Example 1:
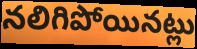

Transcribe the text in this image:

నలిగిపోయినట్లు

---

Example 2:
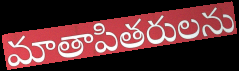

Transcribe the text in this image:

మాతాపితరులను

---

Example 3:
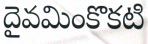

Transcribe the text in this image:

దైవమింకొకటి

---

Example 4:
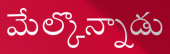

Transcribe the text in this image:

మేల్కొన్నాడు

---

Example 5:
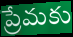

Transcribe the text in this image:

ప్రేమకు